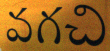
వగచి